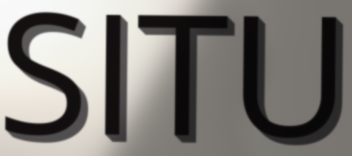
SITU